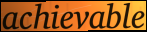
achievable